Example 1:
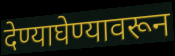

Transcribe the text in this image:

देण्याघेण्यावरून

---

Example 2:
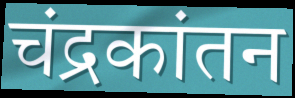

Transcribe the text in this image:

चंद्रकांतन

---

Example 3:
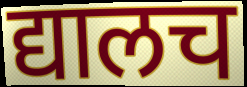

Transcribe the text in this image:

द्यालच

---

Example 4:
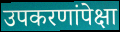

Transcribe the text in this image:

उपकरणांपेक्षा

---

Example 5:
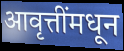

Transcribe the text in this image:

आवृत्तींमधून